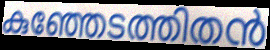
കുഞ്ഞേടത്തിതൻ